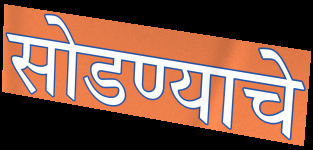
सोडण्याचे